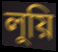
লুয়ি